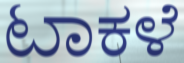
ಟಾಕಳೆ